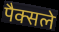
पैक्सले